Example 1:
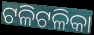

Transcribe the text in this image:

ଟଳିଟଳିକା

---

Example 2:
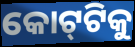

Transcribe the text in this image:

କୋଟ୍‌ଟିକୁ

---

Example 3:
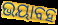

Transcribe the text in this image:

ଭୟାବହ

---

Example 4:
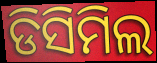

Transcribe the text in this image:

ଡିସିମିଲ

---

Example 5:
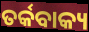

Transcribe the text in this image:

ତର୍କବାକ୍ୟ